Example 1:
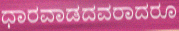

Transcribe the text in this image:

ಧಾರವಾಡದವರಾದರೂ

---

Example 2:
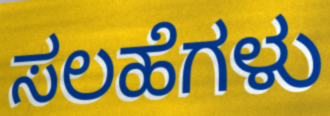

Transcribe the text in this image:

ಸಲಹೆಗಳು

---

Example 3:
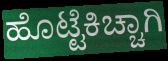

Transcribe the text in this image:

ಹೊಟ್ಟೆಕಿಚ್ಚಾಗಿ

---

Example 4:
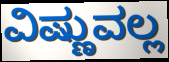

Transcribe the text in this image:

ವಿಷ್ಣುವಲ್ಲ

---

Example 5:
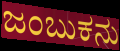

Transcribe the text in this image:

ಜಂಬುಕನು